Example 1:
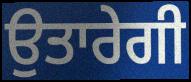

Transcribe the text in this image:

ਉਤਾਰੇਗੀ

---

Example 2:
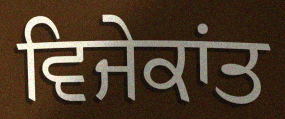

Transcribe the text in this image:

ਵਿਜੇਕਾਂਤ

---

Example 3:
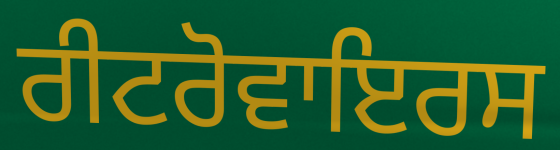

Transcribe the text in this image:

ਰੀਟਰੋਵਾਇਰਸ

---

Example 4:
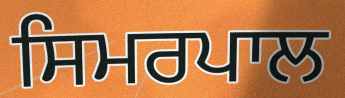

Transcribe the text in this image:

ਸਿਮਰਪਾਲ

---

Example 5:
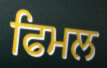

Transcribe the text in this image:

ਫਿਮਲ